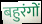
बहुरंगों